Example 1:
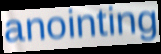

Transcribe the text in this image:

anointing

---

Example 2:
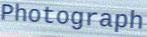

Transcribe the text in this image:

Photograph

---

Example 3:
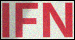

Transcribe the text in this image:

IFN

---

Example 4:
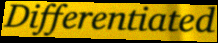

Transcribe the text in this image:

Differentiated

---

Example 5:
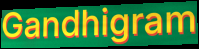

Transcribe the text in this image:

Gandhigram